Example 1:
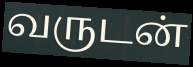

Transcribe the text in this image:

வருடன்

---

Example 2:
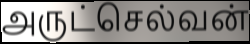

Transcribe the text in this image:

அருட்செல்வன்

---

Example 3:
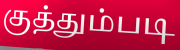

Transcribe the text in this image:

குத்தும்படி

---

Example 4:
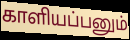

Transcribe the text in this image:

காளியப்பனும்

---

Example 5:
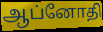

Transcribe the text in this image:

ஆப்னோதி